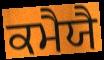
ਕਮੈਯੈ